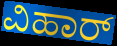
ವಿಹಾರ್